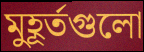
মুহূর্তগুলো